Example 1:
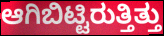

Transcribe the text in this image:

ಆಗಿಬಿಟ್ಟಿರುತ್ತಿತ್ತು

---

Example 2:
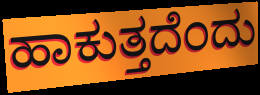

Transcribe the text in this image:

ಹಾಕುತ್ತದೆಂದು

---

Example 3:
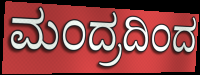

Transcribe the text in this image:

ಮಂದ್ರದಿಂದ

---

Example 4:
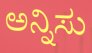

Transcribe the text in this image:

ಅನ್ನಿಸು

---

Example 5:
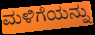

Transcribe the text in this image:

ಮಳಿಗೆಯನ್ನು